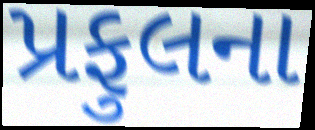
પ્રફુલના